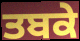
ਤਬਕੇ